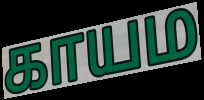
காயம